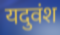
यदुवंश